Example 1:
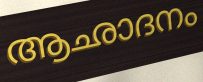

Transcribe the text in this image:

ആഛാദനം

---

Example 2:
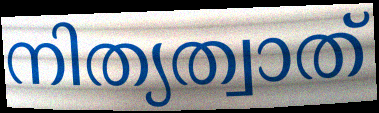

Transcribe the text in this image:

നിത്യത്വാത്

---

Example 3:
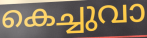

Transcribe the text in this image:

കെച്ചുവാ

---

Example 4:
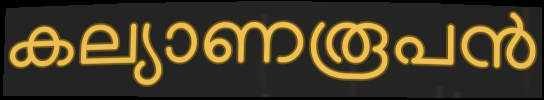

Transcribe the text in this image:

കല്യാണരൂപൻ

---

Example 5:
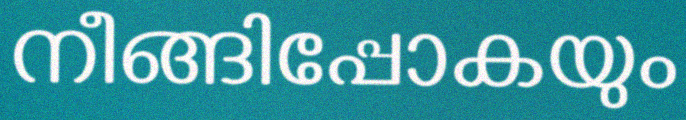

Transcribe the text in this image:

നീങ്ങിപ്പോകയും